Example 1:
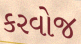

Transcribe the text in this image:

કરવોજ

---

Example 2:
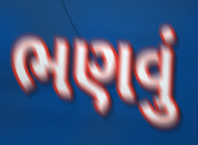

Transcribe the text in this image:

ભણવું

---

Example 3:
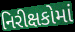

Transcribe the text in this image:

નિરીક્ષકોમાં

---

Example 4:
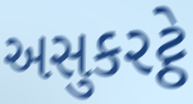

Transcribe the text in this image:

અસુકરટ્ઠે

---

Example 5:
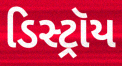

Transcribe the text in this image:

ડિસ્ટ્રૉય